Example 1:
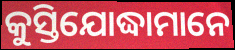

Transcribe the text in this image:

କୁସ୍ତିଯୋଦ୍ଧାମାନେ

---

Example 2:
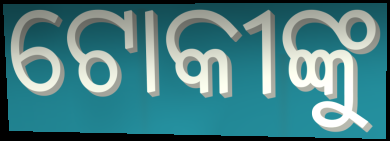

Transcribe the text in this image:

ଟୋକୀଙ୍କୁ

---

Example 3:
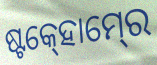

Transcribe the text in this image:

ଷ୍ଟକ୍‍ହୋମ୍‍ରେ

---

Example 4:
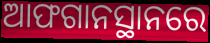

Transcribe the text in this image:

ଆଫଗାନସ୍ଥାନରେ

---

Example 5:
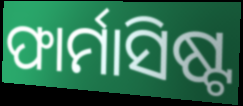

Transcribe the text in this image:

ଫାର୍ମାସିଷ୍ଟ